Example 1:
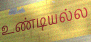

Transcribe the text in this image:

உண்டியல்ல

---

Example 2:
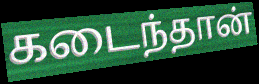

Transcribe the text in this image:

கடைந்தான்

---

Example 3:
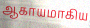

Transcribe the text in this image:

ஆகாயமாகிய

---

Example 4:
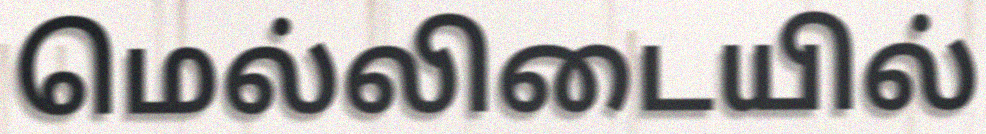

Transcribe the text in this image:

மெல்லிடையில்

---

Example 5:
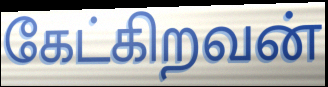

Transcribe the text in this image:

கேட்கிறவன்